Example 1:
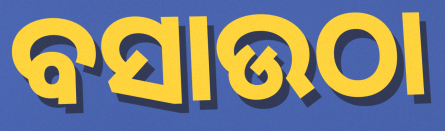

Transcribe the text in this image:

ବସାଉଠା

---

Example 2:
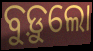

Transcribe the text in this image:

ବୁଡ଼ୁଲୋ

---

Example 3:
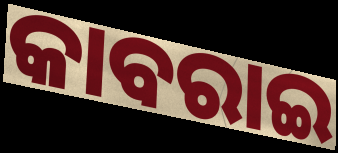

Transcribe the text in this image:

କାବରାଇ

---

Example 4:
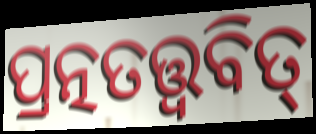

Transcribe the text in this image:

ପ୍ରତ୍ନତତ୍ତ୍ଵବିତ୍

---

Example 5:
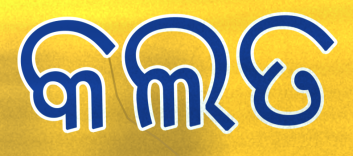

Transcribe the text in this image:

କଲତ